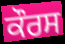
ਕੌਰਸ